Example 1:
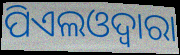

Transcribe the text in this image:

ପିଏଲଓଦ୍ୱାରା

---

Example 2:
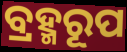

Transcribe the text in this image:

ବ୍ରହ୍ମରୂପ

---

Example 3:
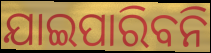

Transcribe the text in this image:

ଯାଇପାରିବନି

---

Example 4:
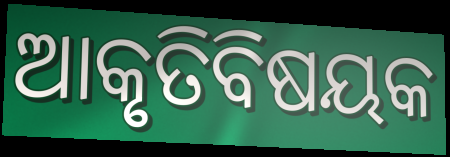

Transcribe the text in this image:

ଆକୃତିବିଷୟକ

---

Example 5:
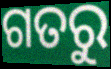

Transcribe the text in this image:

ଗତରୁ